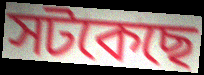
সটকেছে